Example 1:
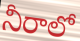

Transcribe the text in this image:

నీరాలో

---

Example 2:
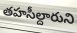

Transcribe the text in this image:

తహసీల్దారుని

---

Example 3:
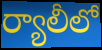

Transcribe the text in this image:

ర్యాలీలో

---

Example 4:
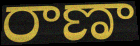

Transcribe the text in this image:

రాణా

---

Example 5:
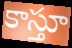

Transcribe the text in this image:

కాస్తూ